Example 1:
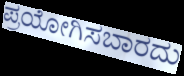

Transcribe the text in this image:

ಪ್ರಯೋಗಿಸಬಾರದು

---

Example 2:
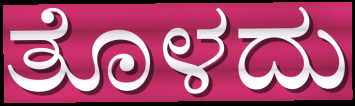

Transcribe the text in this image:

ತೊಳದು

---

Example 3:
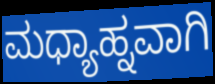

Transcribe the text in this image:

ಮಧ್ಯಾಹ್ನವಾಗಿ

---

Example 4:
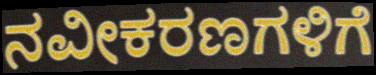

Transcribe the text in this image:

ನವೀಕರಣಗಳಿಗೆ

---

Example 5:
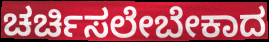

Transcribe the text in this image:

ಚರ್ಚಿಸಲೇಬೇಕಾದ